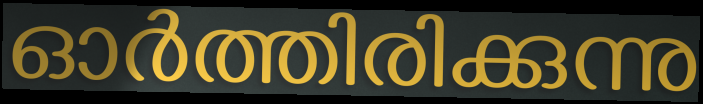
ഓർത്തിരിക്കുന്നു